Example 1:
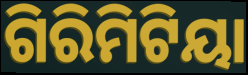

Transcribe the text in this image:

ଗିରିମିଟିୟା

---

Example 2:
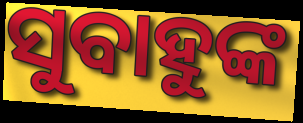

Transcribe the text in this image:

ସୁବାହୁଙ୍କ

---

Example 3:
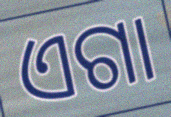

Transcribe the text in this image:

ଏଗା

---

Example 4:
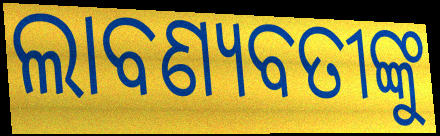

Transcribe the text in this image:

ଲାବଣ୍ୟବତୀଙ୍କୁ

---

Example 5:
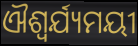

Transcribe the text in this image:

ଐଶ୍ୱର୍ଯ୍ୟମୟୀ